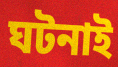
ঘটনাই